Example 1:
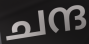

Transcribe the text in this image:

ചന്ദ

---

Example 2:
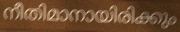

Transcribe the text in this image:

നീതിമാനായിരിക്കും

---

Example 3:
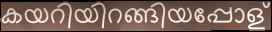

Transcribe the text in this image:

കയറിയിറങ്ങിയപ്പോള്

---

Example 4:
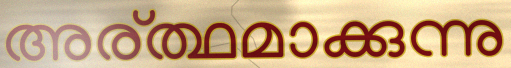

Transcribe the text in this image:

അര്ത്ഥമാക്കുന്നു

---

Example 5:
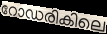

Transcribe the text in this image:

റോഡരികിലെ